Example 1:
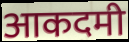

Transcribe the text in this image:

आकदमी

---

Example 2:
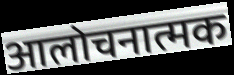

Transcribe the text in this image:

आलोचनात्मक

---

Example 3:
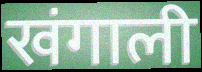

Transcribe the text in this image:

खंगाली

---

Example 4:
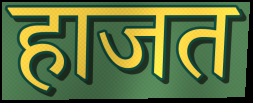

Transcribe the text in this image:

हाजत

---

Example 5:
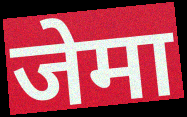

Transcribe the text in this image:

जेमा